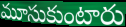
మూసుకుంటారు